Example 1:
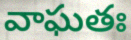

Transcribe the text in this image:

వాఘతః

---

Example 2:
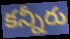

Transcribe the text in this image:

కన్నీరు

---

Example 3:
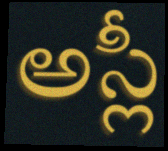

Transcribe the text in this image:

అస్లీ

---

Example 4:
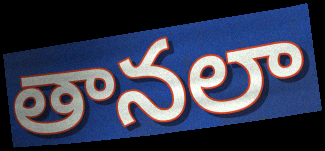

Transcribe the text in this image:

తానలా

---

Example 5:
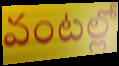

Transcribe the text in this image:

వంటల్లో